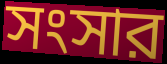
সংসার